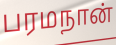
பரமநான்